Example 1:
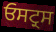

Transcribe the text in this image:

ਓਸਟ੍ਰਸ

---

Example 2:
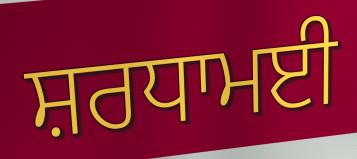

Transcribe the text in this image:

ਸ਼ਰਧਾਮਈ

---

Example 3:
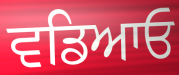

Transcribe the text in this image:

ਵਡਿਆਓ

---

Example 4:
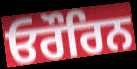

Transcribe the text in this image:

ਓਰੌਰਿਨ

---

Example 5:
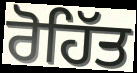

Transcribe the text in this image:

ਰੋਹਿੱਤ